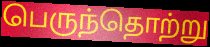
பெருந்தொற்று